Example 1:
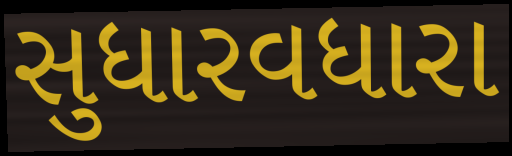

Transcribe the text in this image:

સુધારવધારા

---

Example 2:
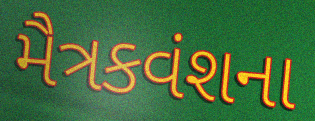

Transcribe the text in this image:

મૈત્રકવંશના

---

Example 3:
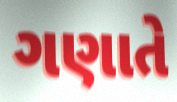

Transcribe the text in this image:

ગણાતે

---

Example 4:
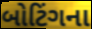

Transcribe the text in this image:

બોટિંગના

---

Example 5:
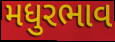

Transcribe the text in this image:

મધુરભાવ